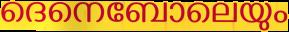
ദെനെബോലെയും